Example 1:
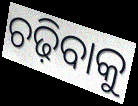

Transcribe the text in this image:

ଚଢ଼ିବାକୁ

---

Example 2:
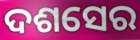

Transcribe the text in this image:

ଦଶସେର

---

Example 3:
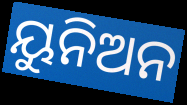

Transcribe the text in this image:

ୟୁନିଅନ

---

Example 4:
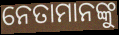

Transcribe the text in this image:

ନେତାମାନଙ୍କୁ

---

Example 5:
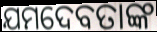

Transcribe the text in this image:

ଯମଦେବତାଙ୍କ